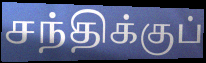
சந்திக்குப்